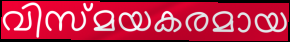
വിസ്മയകരമായ